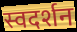
स्वदर्शन